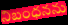
నిబంధనను